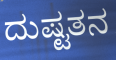
ದುಷ್ಟತನ